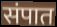
संपात